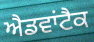
ਐਡਵਾਂਟੈਕ